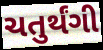
ચતુર્થંગી